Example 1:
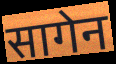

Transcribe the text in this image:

सागेन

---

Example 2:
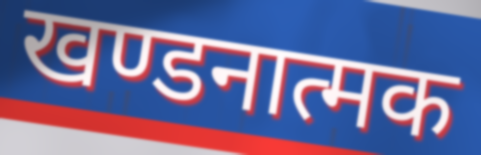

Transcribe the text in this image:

खण्डनात्मक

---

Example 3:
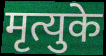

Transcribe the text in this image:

मृत्युके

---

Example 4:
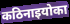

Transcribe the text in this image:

कठिनाइयोका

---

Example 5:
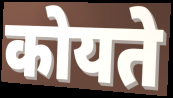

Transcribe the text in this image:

कोयते